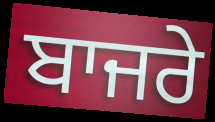
ਬਾਜਰੇ